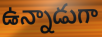
ఉన్నాడుగా